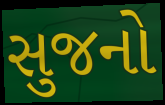
સુજનો